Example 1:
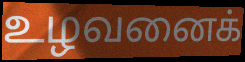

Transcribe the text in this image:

உழவனைக்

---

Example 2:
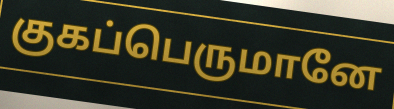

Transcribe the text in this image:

குகப்பெருமானே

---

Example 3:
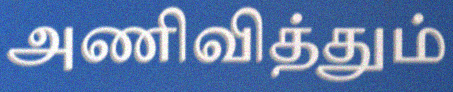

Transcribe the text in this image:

அணிவித்தும்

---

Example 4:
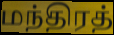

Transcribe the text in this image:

மந்திரத்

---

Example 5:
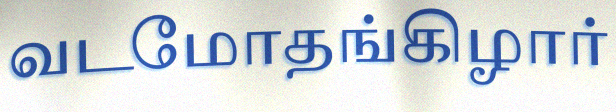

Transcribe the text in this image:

வடமோதங்கிழார்